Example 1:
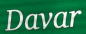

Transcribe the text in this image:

Davar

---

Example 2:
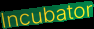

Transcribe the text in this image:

Incubator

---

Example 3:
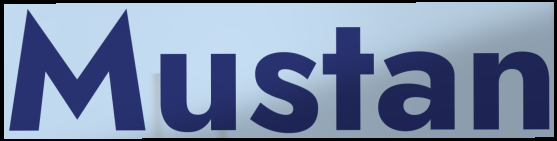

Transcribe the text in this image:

Mustan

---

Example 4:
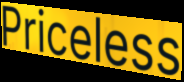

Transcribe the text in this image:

Priceless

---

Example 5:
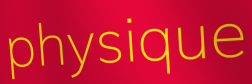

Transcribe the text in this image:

physique